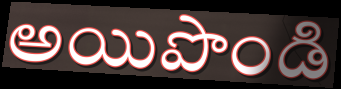
అయిపొండి